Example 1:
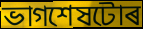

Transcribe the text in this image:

ভাগশেষটোৰ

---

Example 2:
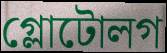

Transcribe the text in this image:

গ্লোটোলগ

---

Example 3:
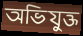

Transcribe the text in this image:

অভিযুক্ত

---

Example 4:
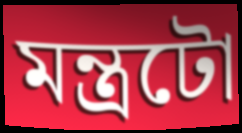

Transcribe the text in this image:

মন্ত্ৰটো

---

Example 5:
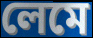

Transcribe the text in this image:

লেমে